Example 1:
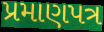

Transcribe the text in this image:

પ્રમાણપત્ર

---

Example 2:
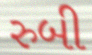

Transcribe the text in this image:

રુબી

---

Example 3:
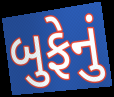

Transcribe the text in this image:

બુફેનું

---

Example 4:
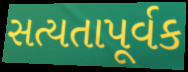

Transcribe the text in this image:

સત્યતાપૂર્વક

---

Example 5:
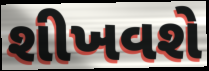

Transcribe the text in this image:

શીખવશે